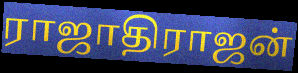
ராஜாதிராஜன்